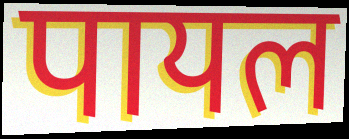
पायल